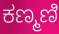
ಕಣ್ಮಣಿ